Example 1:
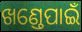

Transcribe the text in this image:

ଖଣ୍ଡେପାଇଁ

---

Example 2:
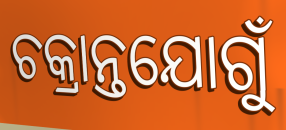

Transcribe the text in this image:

ଚକ୍ରାନ୍ତଯୋଗୁଁ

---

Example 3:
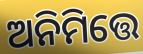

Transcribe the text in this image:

ଅନିମିତ୍ତେ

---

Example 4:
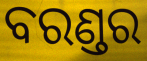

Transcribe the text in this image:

ବରଣ୍ଡର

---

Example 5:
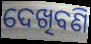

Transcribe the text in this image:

ଦେଖିବଣି